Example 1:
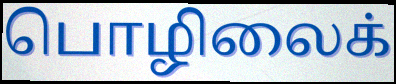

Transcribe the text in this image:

பொழிலைக்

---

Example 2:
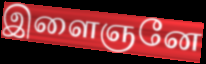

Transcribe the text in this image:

இளைஞனே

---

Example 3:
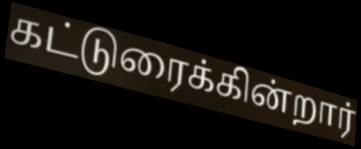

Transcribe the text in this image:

கட்டுரைக்கின்றார்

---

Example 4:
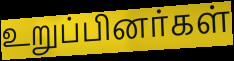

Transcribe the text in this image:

உறுப்பினர்கள்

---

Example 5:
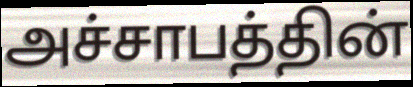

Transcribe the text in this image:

அச்சாபத்தின்